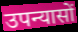
उपन्यासों